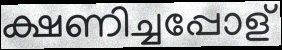
ക്ഷണിച്ചപ്പോള്